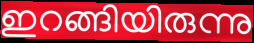
ഇറങ്ങിയിരുന്നു